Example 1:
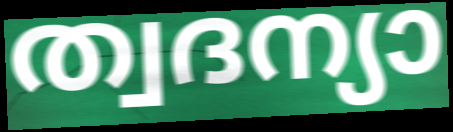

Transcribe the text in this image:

ത്വദന്യാ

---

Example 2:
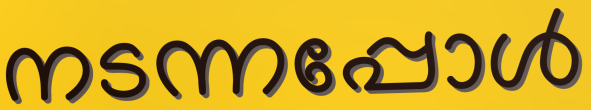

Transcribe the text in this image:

നടന്നപ്പോൾ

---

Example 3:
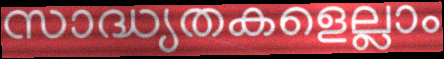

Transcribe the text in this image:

സാദ്ധ്യതകളെല്ലാം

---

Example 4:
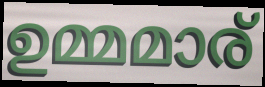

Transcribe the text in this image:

ഉമ്മമാര്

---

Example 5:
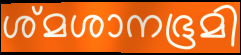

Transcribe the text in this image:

ശ്മശാനഭൂമി